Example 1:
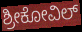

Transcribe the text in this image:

ಶ್ರೀಕೋವಿಲ್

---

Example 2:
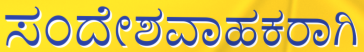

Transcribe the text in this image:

ಸಂದೇಶವಾಹಕರಾಗಿ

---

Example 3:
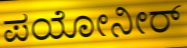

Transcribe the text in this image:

ಪಯೋನೀರ್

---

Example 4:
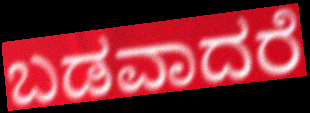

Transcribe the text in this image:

ಬಡವಾದರೆ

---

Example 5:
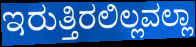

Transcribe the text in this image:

ಇರುತ್ತಿರಲಿಲ್ಲವಲ್ಲಾ